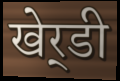
खेर्डी